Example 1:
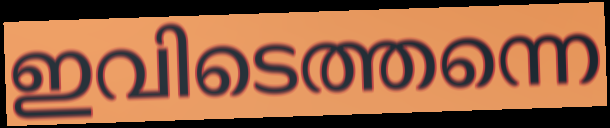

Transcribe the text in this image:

ഇവിടെത്തന്നെ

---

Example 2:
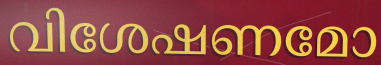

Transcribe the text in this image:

വിശേഷണമോ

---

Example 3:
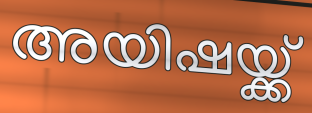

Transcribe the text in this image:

അയിഷയ്ക്ക്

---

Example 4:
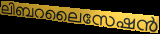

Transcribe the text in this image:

ലിബറലൈസേഷൻ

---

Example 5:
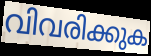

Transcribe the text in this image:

വിവരിക്കുക